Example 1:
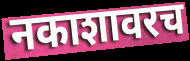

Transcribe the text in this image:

नकाशावरच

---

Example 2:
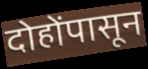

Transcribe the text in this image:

दोहोंपासून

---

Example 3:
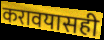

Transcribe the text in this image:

करावयासही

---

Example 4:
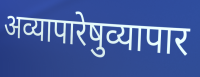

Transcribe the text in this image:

अव्यापारेषुव्यापार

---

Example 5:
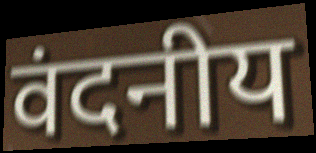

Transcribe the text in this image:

वंदनीय